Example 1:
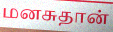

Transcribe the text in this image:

மனசுதான்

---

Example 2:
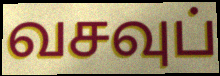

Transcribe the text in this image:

வசவுப்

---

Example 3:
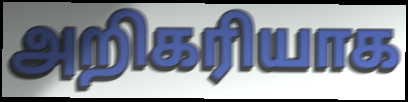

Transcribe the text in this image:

அறிகரியாக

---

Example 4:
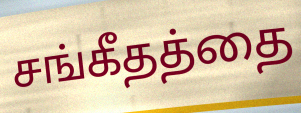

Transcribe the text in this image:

சங்கீதத்தை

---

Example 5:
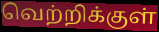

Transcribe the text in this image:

வெற்றிக்குள்